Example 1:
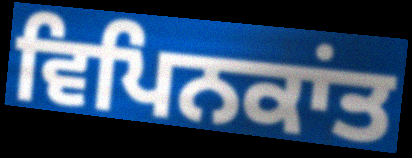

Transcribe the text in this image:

ਵਿਪਿਨਕਾਂਤ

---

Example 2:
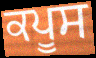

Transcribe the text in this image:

ਕਪੂਸ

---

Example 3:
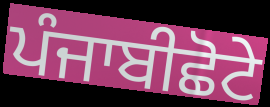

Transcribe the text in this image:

ਪੰਜਾਬੀਛੋਟੇ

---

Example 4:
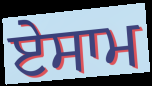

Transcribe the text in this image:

ਏਸਾਮ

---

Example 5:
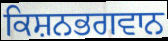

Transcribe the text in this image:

ਕਿਸ਼ਨਭਗਵਾਨ